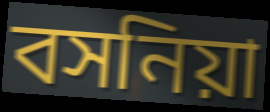
বসনিয়া